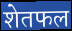
शेतफल